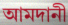
আমদানী